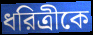
ধরিত্রীকে